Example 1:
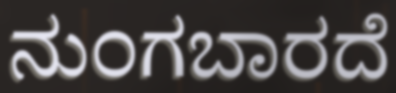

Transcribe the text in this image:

ನುಂಗಬಾರದೆ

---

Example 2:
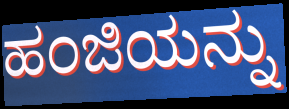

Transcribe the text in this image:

ಹಂಜಿಯನ್ನು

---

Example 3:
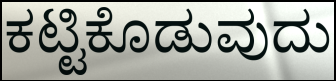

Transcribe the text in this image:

ಕಟ್ಟಿಕೊಡುವುದು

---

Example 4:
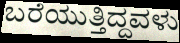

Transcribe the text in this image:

ಬರೆಯುತ್ತಿದ್ದವಳು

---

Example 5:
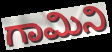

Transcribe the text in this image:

ಗಾಮಿನಿ